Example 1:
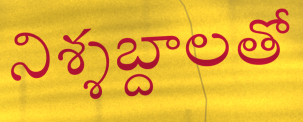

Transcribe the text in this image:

నిశ్శబ్దాలతో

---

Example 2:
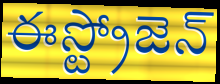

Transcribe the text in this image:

ఈస్ట్రోజెన్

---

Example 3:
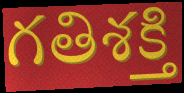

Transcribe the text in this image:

గతిశక్తి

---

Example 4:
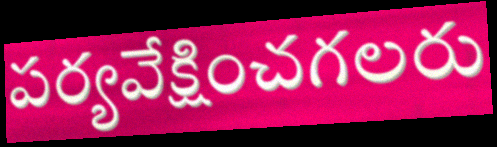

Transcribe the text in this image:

పర్యవేక్షించగలరు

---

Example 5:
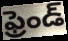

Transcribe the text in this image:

ఫ్రెండ్